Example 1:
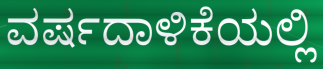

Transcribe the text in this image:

ವರ್ಷದಾಳಿಕೆಯಲ್ಲಿ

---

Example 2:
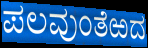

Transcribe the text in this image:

ಪಲವುಂತೆಱದ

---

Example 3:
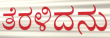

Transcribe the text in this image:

ತೆರಳಿದನು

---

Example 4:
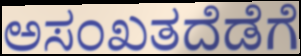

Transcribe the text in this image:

ಅಸಂಖತದೆಡೆಗೆ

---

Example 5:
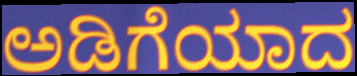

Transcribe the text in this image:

ಅಡಿಗೆಯಾದ